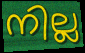
നില്ല